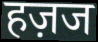
हज़ज